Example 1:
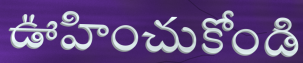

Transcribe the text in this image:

ఊహించుకోండి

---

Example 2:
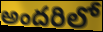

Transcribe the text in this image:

అందరిలో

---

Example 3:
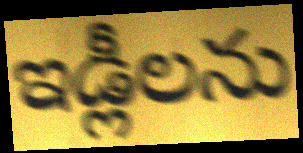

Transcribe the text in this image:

ఇడ్లీలను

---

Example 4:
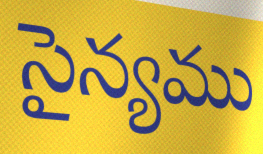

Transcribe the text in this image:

సైన్యము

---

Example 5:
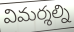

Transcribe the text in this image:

విమర్శల్ని